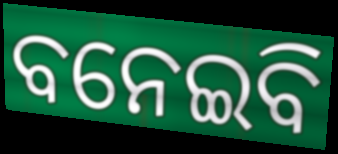
ବନେଇବି